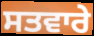
ਸਤਵਾਰੇ